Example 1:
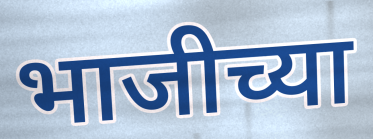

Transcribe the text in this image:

भाजीच्या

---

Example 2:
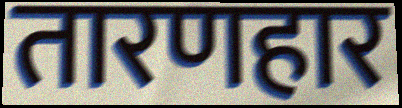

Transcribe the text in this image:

तारणहार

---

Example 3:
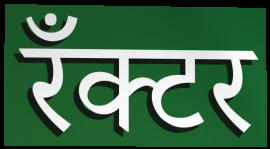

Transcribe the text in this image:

रँक्टर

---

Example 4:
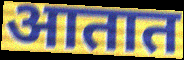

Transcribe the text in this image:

आतात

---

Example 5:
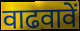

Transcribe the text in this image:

वाढवावें